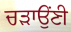
ਚੜਾਉਂਣੀ